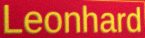
Leonhard